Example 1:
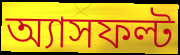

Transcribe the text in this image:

অ্যাসফল্ট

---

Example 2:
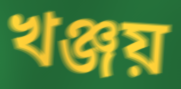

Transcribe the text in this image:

খঞ্জয়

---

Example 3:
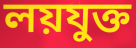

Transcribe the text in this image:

লয়যুক্ত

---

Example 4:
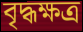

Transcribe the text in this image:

বৃদ্ধক্ষত্র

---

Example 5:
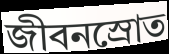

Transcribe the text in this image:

জীবনস্রোত